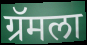
ग्रॅमला